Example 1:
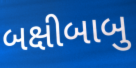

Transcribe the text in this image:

બક્ષીબાબુ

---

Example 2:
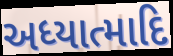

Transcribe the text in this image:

અધ્યાત્માદિ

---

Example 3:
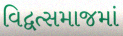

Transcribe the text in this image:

વિદ્વત્સમાજમાં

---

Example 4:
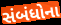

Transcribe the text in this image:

સંબંધોના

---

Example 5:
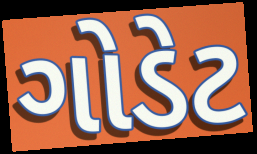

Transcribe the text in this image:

ગોડેટ